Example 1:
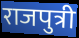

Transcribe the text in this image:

राजपुत्री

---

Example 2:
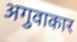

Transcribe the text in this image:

अगुवाकार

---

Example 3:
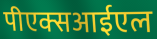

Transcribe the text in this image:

पीएक्सआईएल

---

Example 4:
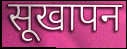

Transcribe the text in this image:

सूखापन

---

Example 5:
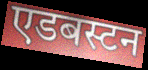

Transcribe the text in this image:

एडबस्टन